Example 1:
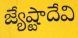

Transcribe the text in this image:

జ్యేష్టాదేవి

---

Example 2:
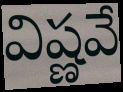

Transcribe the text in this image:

విష్ణవే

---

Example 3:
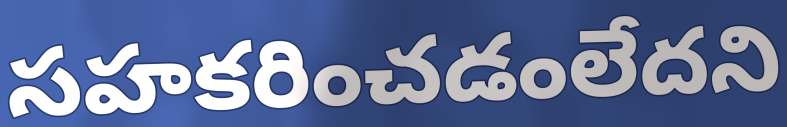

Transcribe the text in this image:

సహకరించడంలేదని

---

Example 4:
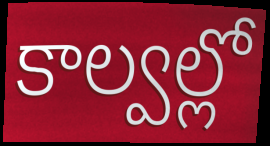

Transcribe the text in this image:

కాల్వల్లో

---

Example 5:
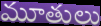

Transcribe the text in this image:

మూతులు